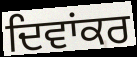
ਦਿਵਾਂਕਰ